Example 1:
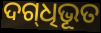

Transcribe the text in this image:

ଦଗ୍‍ଧିଭୂତ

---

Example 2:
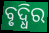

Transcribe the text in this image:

ବୃଦ୍ଧିର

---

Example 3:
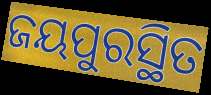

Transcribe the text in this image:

ଜୟପୁରସ୍ଥିତ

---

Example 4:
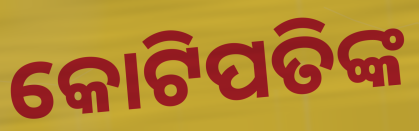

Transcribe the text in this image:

କୋଟିପତିଙ୍କ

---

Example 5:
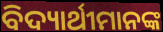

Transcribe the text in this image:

ବିଦ୍ୟାର୍ଥୀମାନଙ୍କ